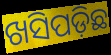
ଖସିପଡ଼ିଛ